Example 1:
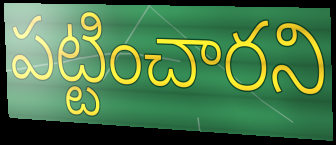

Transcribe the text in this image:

పట్టించారని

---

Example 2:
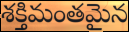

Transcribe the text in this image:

శక్తిమంతమైన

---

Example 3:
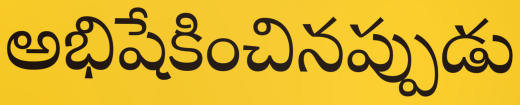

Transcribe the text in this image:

అభిషేకించినప్పుడు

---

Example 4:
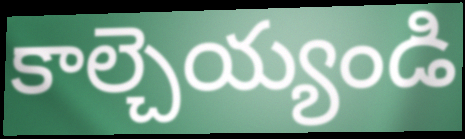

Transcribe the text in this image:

కాల్చెయ్యండి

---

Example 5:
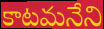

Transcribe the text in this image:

కాటమనేని